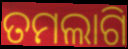
ତମଲାଗି